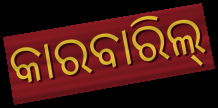
କାରବାରିଲ୍